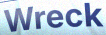
Wreck